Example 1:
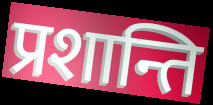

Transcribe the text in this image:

प्रशान्ति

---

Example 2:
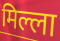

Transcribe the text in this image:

मिल्ला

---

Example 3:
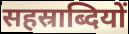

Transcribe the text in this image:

सहस्राब्दियों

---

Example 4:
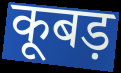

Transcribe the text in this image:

कूबड़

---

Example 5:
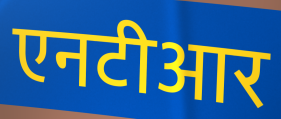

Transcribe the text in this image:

एनटीआर